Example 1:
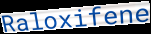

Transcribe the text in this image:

Raloxifene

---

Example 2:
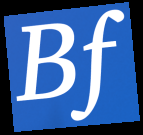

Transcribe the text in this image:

Bf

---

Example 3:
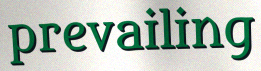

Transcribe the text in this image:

prevailing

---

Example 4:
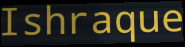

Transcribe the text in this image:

Ishraque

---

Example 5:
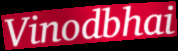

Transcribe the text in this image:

Vinodbhai